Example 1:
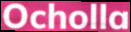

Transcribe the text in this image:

Ocholla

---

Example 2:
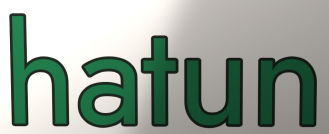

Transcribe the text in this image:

hatun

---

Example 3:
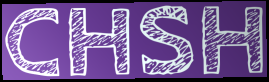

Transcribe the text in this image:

CHSH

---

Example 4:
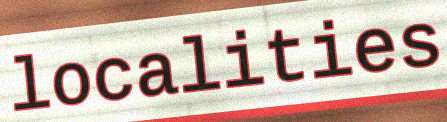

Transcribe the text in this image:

localities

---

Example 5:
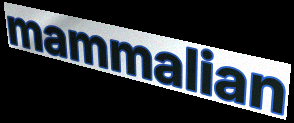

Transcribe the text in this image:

mammalian